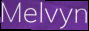
Melvyn